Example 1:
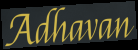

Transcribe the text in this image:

Adhavan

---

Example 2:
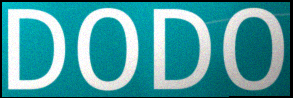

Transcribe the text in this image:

DODO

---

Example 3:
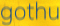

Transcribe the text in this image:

gothu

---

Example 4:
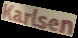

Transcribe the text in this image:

Karlsen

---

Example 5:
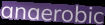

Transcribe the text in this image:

anaerobic